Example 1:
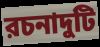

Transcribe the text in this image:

রচনাদুটি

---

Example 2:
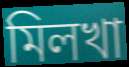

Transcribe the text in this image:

মিলখা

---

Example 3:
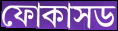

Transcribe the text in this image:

ফোকাসড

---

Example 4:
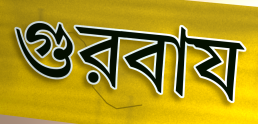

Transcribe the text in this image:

গুরবায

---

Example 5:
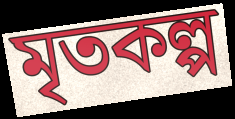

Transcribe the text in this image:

মৃতকল্প